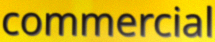
commercial